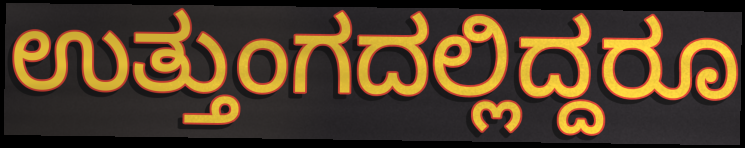
ಉತ್ತುಂಗದಲ್ಲಿದ್ದರೂ